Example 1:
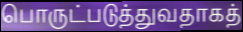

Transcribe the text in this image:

பொருட்படுத்துவதாகத்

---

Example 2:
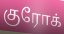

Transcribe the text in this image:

குரோக்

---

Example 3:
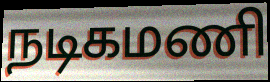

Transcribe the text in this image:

நடிகமணி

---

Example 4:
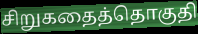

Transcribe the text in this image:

சிறுகதைத்தொகுதி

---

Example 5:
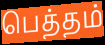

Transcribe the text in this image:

பெத்தம்